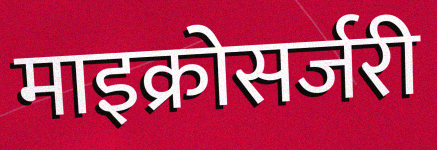
माइक्रोसर्जरी